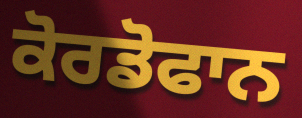
ਕੋਰਡੋਫਾਨ